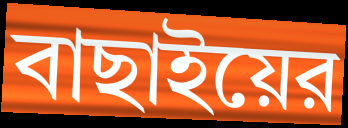
বাছাইয়ের